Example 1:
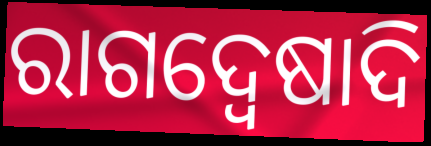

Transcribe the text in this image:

ରାଗଦ୍ୱେଷାଦି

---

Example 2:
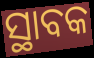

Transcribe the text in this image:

ସ୍ଥାବକ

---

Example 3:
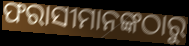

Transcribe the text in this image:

ଫରାସୀମାନଙ୍କଠାରୁ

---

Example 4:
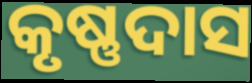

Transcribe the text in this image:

କୃଷ୍ଣଦାସ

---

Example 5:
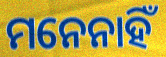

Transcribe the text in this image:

ମନେନାହିଁ